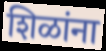
शिळांना